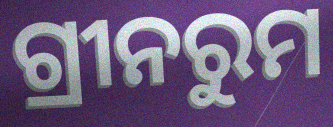
ଗ୍ରୀନରୁମ